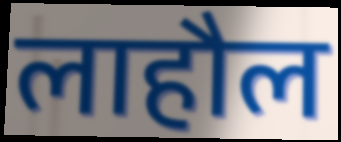
लाहौल